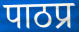
पाठप्र